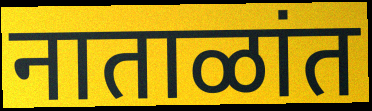
नाताळांत